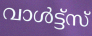
വാൾട്ട്സ്